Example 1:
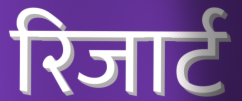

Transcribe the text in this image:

रिजार्ट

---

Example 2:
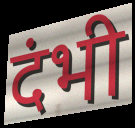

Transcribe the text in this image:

दंभी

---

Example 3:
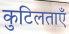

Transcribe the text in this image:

कुटिलताएँ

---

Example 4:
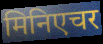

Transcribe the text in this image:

मिनिएचर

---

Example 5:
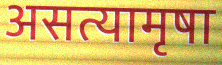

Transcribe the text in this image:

असत्यामृषा